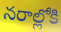
నరాల్లోకి